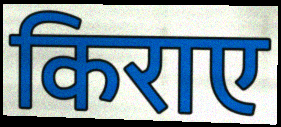
किराए